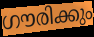
ഗൗരിക്കും